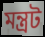
মন্ত্রট